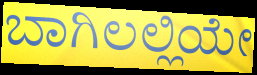
ಬಾಗಿಲಲ್ಲಿಯೇ